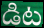
డిట